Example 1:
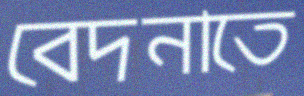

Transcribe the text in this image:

বেদনাতে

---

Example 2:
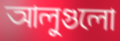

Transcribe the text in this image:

আলুগুলো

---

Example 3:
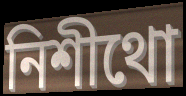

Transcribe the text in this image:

নিশীথো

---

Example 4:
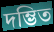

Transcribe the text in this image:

দম্ভিত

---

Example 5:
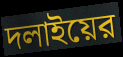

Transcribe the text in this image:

দলাইয়ের